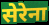
सेरेना